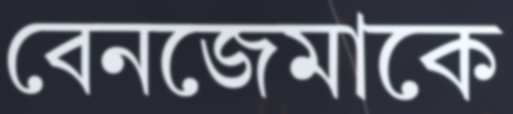
বেনজেমাকে